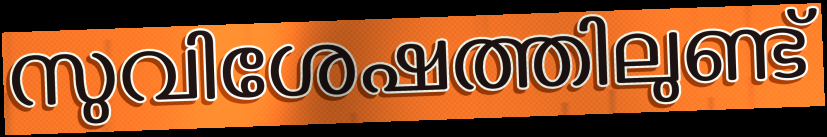
സുവിശേഷത്തിലുണ്ട്